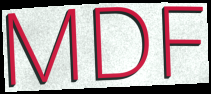
MDF